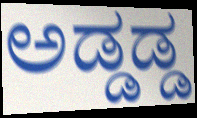
ಅಡ್ಡಡ್ಡ